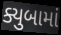
ક્યુબામાં